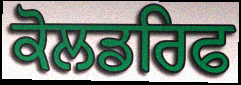
ਕੋਲਡਰਿਫ